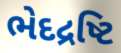
ભેદદ્રષ્ટિ